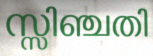
സ്സിഞ്ചതി